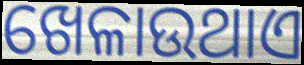
ଖେଳାଉଥାଏ